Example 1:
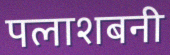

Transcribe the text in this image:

पलाशबनी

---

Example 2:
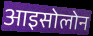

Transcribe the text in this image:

आइसोलोन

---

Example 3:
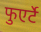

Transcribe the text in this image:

फुएर्टे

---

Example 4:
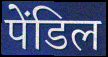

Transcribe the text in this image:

पेंडिल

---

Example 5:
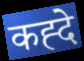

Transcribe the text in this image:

कह्दे